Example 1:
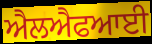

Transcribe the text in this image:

ਐਲਐਫਆਈ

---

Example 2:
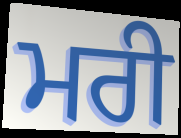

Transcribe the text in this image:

ਮਰੀ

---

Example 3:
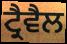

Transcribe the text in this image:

ਟ੍ਰੈਵੈਲ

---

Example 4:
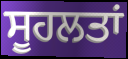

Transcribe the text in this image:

ਸੂਹਲਤਾਂ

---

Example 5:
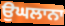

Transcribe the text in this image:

ਉਘਲਾਨਾ